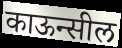
काऊन्सील